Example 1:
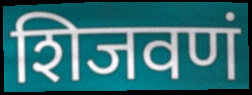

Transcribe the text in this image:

शिजवणं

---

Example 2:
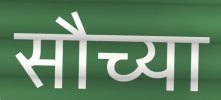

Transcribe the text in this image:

सौच्या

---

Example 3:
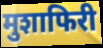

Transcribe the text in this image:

मुशाफिरी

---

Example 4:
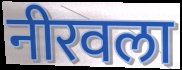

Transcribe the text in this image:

नीरवला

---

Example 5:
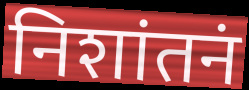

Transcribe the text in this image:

निशांतनं